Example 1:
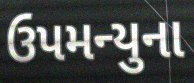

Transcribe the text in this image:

ઉપમન્યુના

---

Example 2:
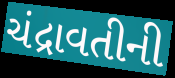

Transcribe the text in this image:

ચંદ્રાવતીની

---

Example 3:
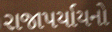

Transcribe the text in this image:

રાજાપર્યાયનો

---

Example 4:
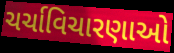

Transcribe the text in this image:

ચર્ચાવિચારણાઓ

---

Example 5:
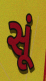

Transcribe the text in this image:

સૂં